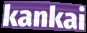
kankai